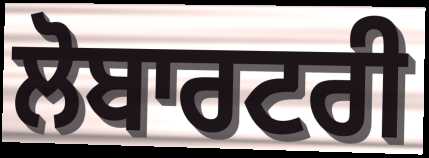
ਲੋਬਾਰਟਰੀ